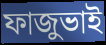
ফাজুভাই